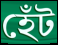
হেঁট